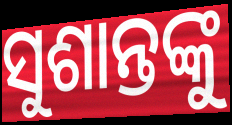
ସୁଶାନ୍ତଙ୍କୁ